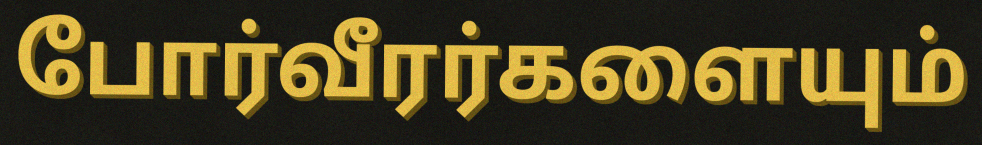
போர்வீரர்களையும்